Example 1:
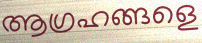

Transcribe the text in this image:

ആഗ്രഹങ്ങളെ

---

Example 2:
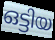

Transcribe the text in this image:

ഒട്ടിയ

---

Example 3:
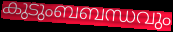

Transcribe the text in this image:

കുടുംബബന്ധവും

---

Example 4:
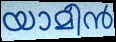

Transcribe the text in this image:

യാമീൻ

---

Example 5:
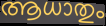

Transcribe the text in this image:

ആധാതും